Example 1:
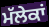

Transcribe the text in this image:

ਮੱਲੇਕਾਂ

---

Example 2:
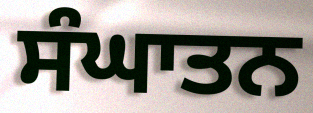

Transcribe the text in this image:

ਸੰਘਾਤਨ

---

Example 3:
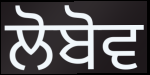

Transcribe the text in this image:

ਲੋਬੋਵ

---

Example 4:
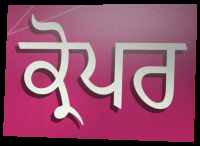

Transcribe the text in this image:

ਕ੍ਰੋਪਰ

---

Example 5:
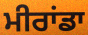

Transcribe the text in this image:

ਮੀਰਾਂਡਾ